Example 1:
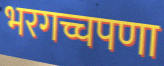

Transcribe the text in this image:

भरगच्चपणा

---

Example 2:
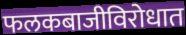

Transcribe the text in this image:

फलकबाजीविरोधात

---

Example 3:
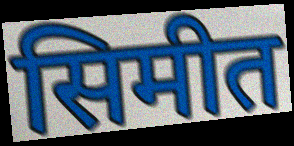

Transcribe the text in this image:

सिमीत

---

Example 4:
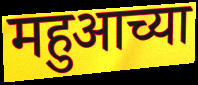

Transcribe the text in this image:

महुआच्या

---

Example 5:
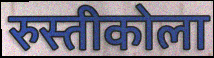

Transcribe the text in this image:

रुस्तीकोला